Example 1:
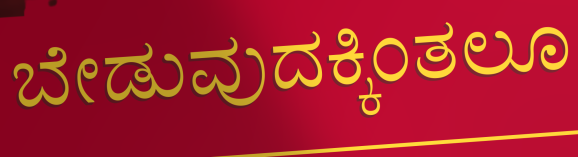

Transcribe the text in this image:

ಬೇಡುವುದಕ್ಕಿಂತಲೂ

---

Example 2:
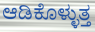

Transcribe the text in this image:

ಆಡಿಕೊಳ್ಳುತ್ತ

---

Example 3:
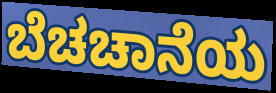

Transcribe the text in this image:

ಬೆಚಚಾನೆಯ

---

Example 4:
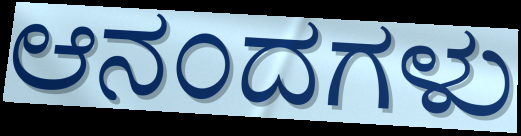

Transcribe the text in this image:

ಆನಂದಗಳು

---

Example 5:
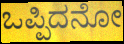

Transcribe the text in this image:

ಒಪ್ಪಿದನೋ